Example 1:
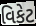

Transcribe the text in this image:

વિકેટ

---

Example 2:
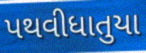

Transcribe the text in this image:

પથવીધાતુયા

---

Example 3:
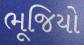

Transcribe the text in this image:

ભૂજિયો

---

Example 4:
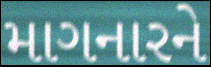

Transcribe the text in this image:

માગનારને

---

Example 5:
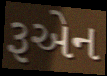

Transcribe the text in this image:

રૂએન